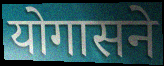
योगासने